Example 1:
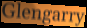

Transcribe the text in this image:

Glengarry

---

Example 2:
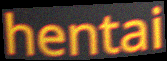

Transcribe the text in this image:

hentai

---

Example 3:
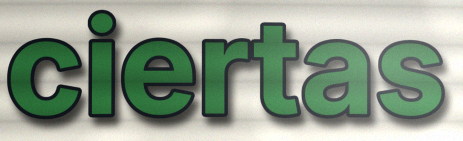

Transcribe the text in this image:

ciertas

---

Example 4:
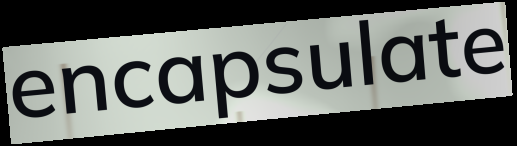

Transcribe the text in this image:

encapsulate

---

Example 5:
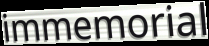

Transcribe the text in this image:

immemorial